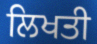
ਲਿਖਤੀ